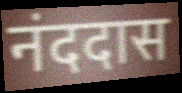
नंददास